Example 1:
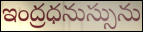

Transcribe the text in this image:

ఇంద్రధనుస్సును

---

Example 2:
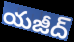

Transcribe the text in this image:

యజీద్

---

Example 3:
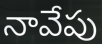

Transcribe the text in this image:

నావేపు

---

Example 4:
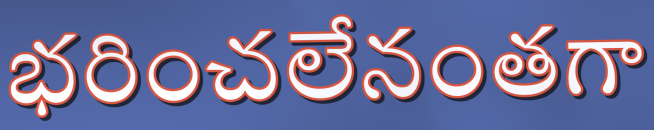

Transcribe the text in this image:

భరించలేనంతగా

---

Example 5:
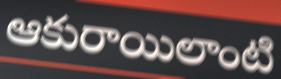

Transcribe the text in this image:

ఆకురాయిలాంటి